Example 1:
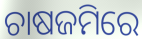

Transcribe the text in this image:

ଚାଷଜମିରେ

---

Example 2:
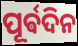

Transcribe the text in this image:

ପୂର୍ଵଦିନ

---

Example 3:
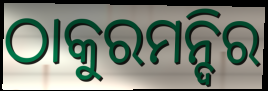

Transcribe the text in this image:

ଠାକୁରମନ୍ଦିର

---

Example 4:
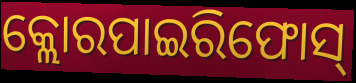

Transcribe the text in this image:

କ୍ଲୋରପାଇରିଫୋସ୍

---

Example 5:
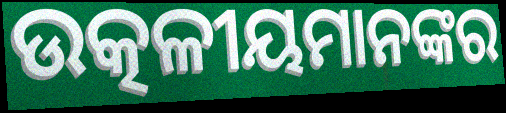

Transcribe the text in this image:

ଉତ୍କଳୀୟମାନଙ୍କର